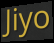
Jiyo